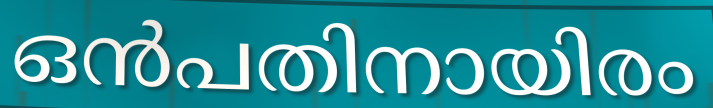
ഒൻപതിനായിരം